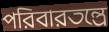
পরিবারতন্ত্রে